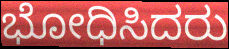
ಭೋಧಿಸಿದರು